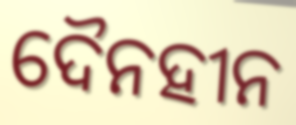
ଦୈନହୀନ